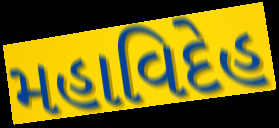
મહાવિદેહ